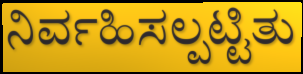
ನಿರ್ವಹಿಸಲ್ಪಟ್ಟಿತು